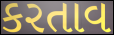
કરતાવ